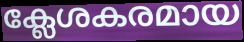
ക്ലേശകരമായ